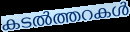
കടൽത്തറകൾ